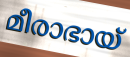
മീരാഭായ്